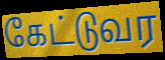
கேட்டுவர